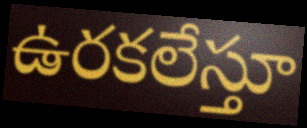
ఉరకలేస్తూ